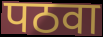
पठवा